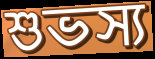
শুভস্য